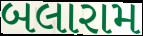
બલારામ